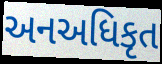
અનઅધિકૃત